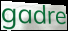
gadre